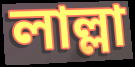
লাল্লা